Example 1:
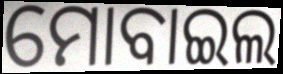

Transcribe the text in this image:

ମୋବାଇଲ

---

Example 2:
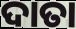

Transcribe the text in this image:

ଦାତା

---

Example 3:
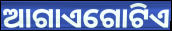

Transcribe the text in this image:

ଆଗାଏଗୋଟିଏ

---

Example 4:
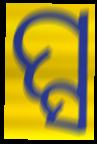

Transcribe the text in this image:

ପ୍ସ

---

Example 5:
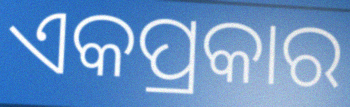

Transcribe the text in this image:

ଏକପ୍ରକାର